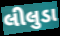
લીલુડા